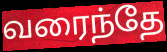
வரைந்தே